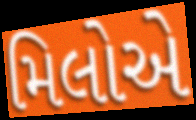
મિલોએ